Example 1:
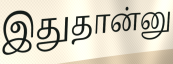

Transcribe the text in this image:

இதுதான்னு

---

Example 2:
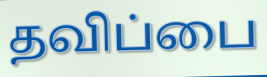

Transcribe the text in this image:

தவிப்பை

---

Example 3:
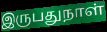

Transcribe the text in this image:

இருபதுநாள்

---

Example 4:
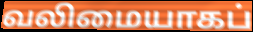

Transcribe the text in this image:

வலிமையாகப்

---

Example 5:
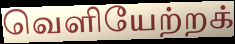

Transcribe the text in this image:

வெளியேற்றக்